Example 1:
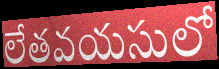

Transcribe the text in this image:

లేతవయసులో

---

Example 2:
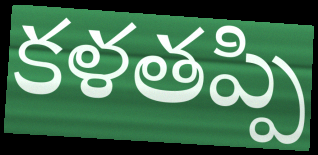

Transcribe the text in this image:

కళతప్పి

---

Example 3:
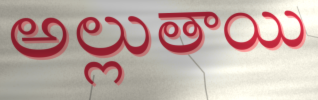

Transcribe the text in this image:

అల్లుతాయి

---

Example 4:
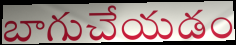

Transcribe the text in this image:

బాగుచేయడం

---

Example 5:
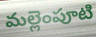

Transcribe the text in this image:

మల్లెంపూటి